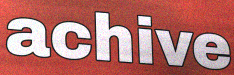
achive